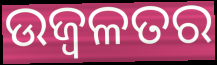
ଉଜ୍ବଳତର